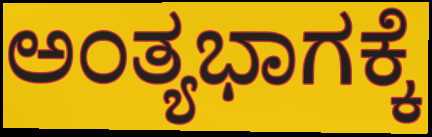
ಅಂತ್ಯಭಾಗಕ್ಕೆ